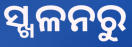
ସ୍ଖଳନରୁ